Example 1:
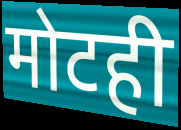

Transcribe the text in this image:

मोटही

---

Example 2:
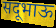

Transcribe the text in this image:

सदूभाऊ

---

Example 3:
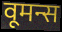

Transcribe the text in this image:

वूमन्स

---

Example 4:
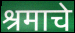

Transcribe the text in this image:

श्रमाचे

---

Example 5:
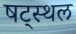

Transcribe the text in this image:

षट्स्थल